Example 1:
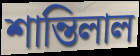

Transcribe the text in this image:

শান্তিলাল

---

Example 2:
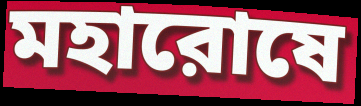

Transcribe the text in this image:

মহারোষে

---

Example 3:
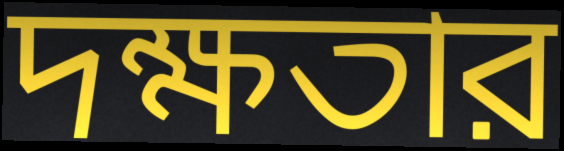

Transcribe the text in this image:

দক্ষতার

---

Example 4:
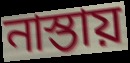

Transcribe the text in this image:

নাস্তায়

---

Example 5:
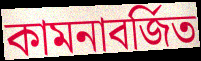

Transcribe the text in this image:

কামনাবর্জিত